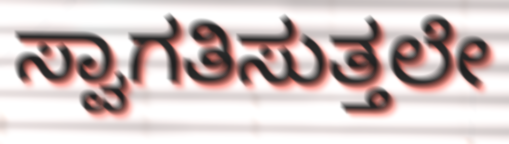
ಸ್ವಾಗತಿಸುತ್ತಲೇ